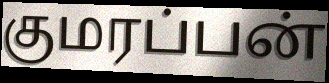
குமரப்பன்